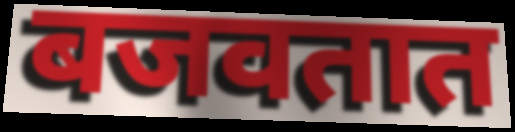
बजवतात